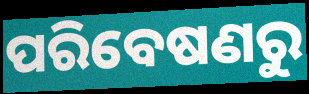
ପରିବେଷଣରୁ